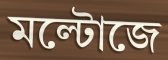
মল্টোজে